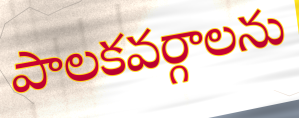
పాలకవర్గాలను